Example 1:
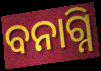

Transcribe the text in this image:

ବନାଗ୍ନି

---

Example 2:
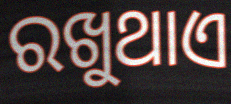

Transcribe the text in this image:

ରଖୁଥାଏ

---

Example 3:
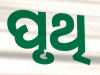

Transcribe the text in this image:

ପୃଥି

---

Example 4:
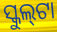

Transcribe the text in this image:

ସ୍କୁଲ୍‍ଟା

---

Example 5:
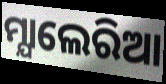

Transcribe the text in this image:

ମ୍ଯାଲେରିଆ